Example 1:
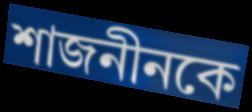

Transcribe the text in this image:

শাজনীনকে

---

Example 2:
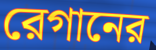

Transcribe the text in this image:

রেগানের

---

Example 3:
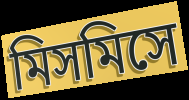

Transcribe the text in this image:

মিসমিসে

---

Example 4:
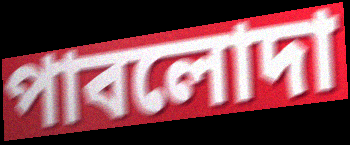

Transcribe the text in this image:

পাবলোদা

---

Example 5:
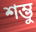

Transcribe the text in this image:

শম্ভু